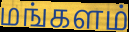
மங்களம்